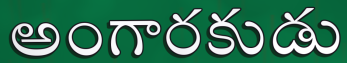
అంగారకుడు